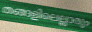
തങ്ങളിലെല്ലാരും